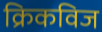
क्रिकविज